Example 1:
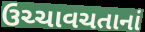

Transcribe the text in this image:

ઉચ્ચાવચતાનાં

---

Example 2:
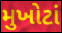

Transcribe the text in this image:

મુખોટાં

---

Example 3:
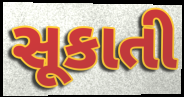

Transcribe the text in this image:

સૂકાતી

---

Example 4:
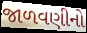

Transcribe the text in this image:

જાળવણીનો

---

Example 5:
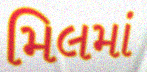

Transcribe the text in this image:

મિલમાં